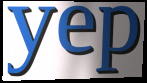
yep